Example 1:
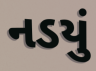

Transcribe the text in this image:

નડયું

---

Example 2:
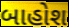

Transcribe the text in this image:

બાહોશ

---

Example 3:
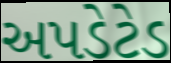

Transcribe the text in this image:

અપડેટેડ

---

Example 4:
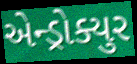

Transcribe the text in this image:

એન્ડ્રોક્યુર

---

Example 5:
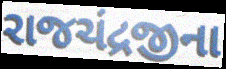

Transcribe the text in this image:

રાજચંદ્રજીના